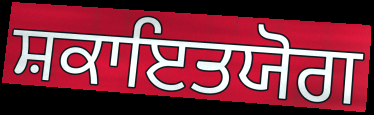
ਸ਼ਕਾਇਤਯੋਗ